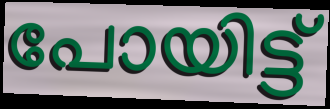
പോയിട്ട്